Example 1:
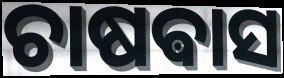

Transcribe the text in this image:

ଚାଷଵାସ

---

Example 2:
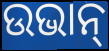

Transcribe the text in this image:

ଉଭାନ୍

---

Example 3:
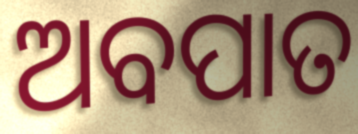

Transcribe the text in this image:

ଅବପାତ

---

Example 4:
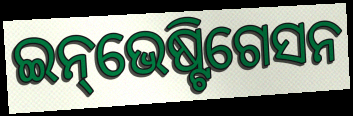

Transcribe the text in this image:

ଇନ୍‌ଭେଷ୍ଟିଗେସନ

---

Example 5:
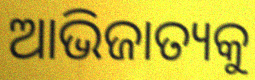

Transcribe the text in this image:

ଆଭିଜାତ୍ୟକୁ